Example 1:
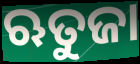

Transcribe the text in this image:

ଋତୁଜା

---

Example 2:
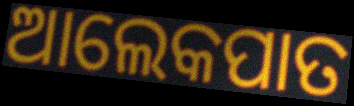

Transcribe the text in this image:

ଆଲେକପାତ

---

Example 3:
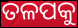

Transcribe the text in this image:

ତଳପକୁ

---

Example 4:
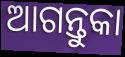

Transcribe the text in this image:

ଆଗନ୍ତୁକା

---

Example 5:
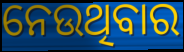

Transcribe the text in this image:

ନେଉଥିବାର